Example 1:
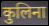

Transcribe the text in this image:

कुलिना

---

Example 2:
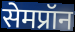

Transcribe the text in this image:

सेमप्रॉन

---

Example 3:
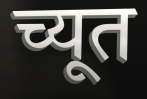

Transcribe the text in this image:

च्यूत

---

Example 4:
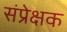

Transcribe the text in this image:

संप्रेक्षक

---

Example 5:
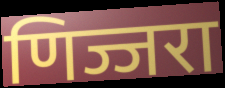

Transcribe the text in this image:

णिज्जरा